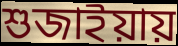
শুজাইয়ায়